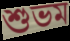
শুভম